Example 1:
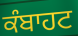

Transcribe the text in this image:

ਕੰਬਾਹਟ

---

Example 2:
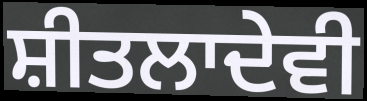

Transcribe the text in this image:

ਸ਼ੀਤਲਾਦੇਵੀ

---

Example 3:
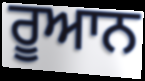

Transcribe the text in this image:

ਰੂਆਨ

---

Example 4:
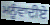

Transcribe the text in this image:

ਮਨੂੰਵਾਦੀਏ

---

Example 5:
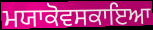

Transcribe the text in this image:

ਮਯਾਕੋਵਸਕਾਇਆ